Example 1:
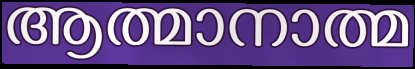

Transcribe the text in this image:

ആത്മാനാത്മ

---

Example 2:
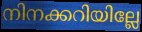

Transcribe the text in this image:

നിനക്കറിയില്ലേ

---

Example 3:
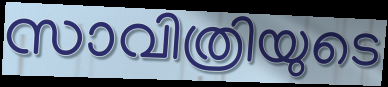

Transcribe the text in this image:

സാവിത്രിയുടെ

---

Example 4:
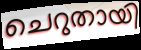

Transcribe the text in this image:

ചെറുതായി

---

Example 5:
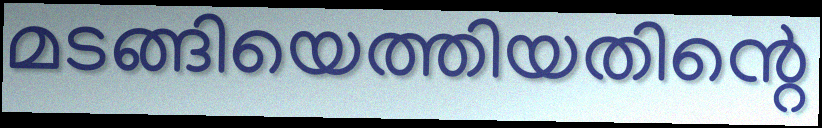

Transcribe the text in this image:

മടങ്ങിയെത്തിയതിന്റെ